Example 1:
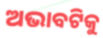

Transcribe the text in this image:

ଅଭାବଟିକୁ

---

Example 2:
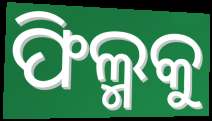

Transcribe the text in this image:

ଫିଲ୍ମକୁ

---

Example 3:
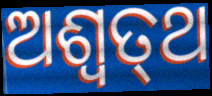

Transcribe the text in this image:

ଅଶ୍ଵତ୍‌ଥ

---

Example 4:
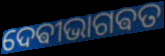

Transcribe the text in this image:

ଦେଵୀଭାଗଵତ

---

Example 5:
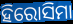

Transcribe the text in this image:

ହିରୋସିମା